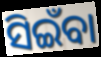
ସିଇଁବା